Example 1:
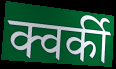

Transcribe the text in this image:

क्वर्की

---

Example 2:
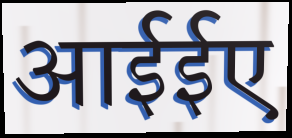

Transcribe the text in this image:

आईईए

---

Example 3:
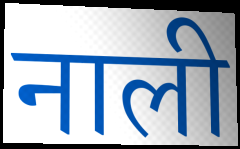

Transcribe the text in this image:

नाली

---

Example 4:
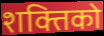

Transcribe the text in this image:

शक्तिको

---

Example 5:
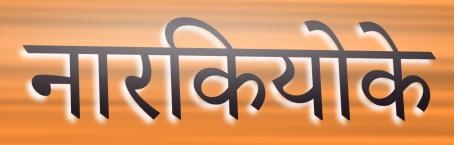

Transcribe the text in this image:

नारकियोके